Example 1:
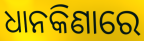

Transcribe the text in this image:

ଧାନକିଣାରେ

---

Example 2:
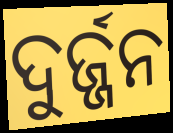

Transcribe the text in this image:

ଦୁର୍ଜ୍ଜନ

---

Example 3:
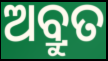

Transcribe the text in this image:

ଅବ୍ରୁତ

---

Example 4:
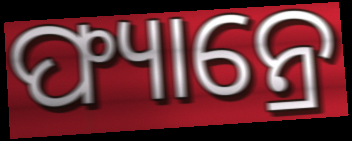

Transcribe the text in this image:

ଫ୍ୟାନ୍ରେ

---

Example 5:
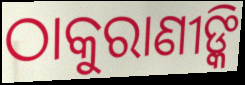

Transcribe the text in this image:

ଠାକୁରାଣୀଙ୍କି